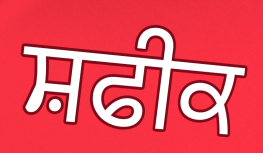
ਸ਼ਫੀਕ